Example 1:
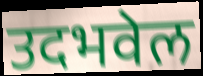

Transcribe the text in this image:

उदभवेल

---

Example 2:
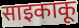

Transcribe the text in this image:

साइकाकू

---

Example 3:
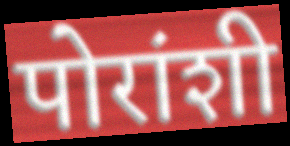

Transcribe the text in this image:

पोरांशी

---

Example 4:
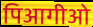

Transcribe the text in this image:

पिआगीओ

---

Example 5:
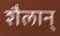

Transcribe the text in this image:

शैलान्